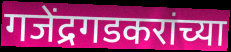
गजेंद्रगडकरांच्या